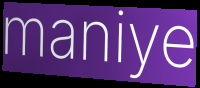
maniye